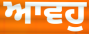
ਆਵਹੁ